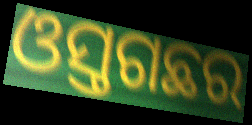
ଓସ୍ତଗଛର